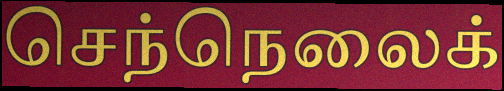
செந்நெலைக்